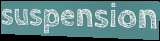
suspension